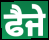
ਫੈਜੇ